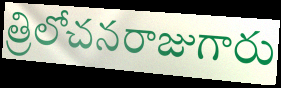
త్రిలోచనరాజుగారు